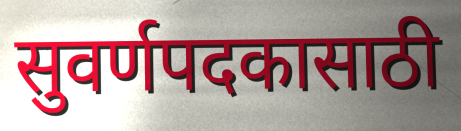
सुवर्णपदकासाठी